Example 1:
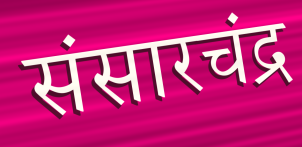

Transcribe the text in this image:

संसारचंद्र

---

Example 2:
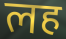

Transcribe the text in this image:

लह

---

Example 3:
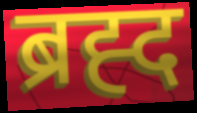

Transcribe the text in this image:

ब्रह्द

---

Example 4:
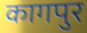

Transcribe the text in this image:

कागपुर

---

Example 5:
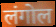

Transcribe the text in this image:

लंगोल